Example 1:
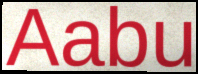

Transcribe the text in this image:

Aabu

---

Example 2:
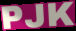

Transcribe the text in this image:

PJK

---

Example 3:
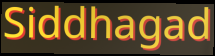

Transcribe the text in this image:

Siddhagad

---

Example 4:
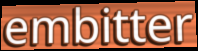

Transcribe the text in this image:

embitter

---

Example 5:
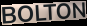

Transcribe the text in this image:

BOLTON